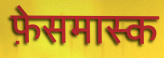
फ़ेसमास्क